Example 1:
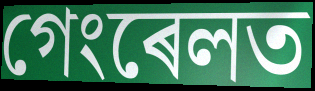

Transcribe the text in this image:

গেংৰেলত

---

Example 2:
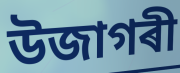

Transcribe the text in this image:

উজাগৰী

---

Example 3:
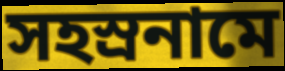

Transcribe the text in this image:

সহস্ৰনামে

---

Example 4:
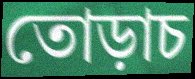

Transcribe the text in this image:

তোড়াচ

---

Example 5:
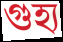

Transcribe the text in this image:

গুহ্য